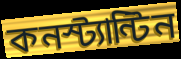
কনস্ট্যান্টিন